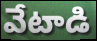
వేటాడి